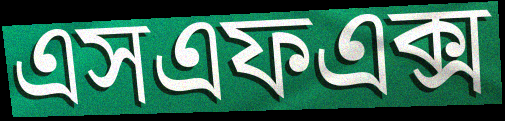
এসএফএক্স